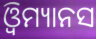
ଓ୍ବିମ୍ୟାନସ